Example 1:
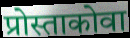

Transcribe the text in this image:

प्रोस्ताकोवा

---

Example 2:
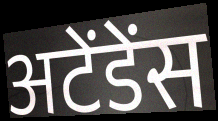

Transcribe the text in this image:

अटेंडेंस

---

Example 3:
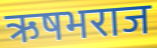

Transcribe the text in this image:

ऋषभराज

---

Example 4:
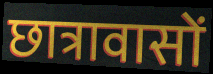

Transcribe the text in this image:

छात्रावासों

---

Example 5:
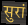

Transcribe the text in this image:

सुरां